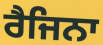
ਰੈਜਿਨਾ